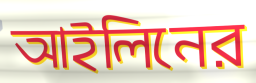
আইলিনের